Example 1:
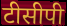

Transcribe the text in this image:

टीसीपी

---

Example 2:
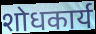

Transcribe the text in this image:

शोधकार्य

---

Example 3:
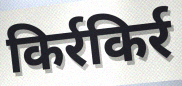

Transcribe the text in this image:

किर्रकिर्र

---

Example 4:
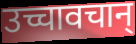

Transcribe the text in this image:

उच्चावचान्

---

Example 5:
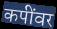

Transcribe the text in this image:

कपींवर